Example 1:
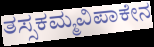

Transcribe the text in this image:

ತಸ್ಸಕಮ್ಮವಿಪಾಕೇನ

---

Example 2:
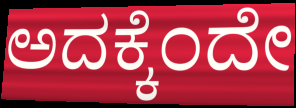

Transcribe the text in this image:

ಅದಕ್ಕೆಂದೇ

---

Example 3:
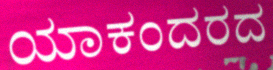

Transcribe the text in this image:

ಯಾಕಂದರದ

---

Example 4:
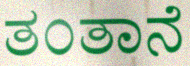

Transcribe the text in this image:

ತಂತಾನೆ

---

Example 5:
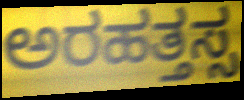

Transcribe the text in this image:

ಅರಹತ್ತಸ್ಸ